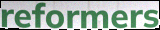
reformers